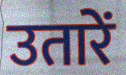
उतारें